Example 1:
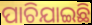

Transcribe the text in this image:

ପାଚିଯାଇଛି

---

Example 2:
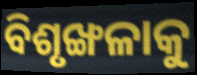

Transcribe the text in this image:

ବିଶୃଙ୍ଖଳାକୁ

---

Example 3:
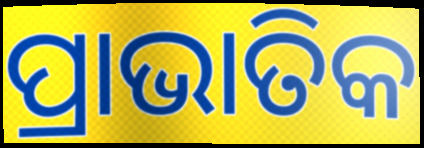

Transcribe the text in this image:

ପ୍ରାଭାତିକ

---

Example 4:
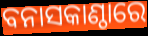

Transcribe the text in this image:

ବନାସକାଣ୍ଠାରେ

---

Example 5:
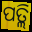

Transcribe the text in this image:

ପତ୍ଲି